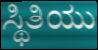
ಸ್ಥಿತಿಯು